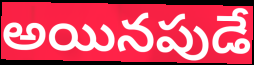
అయినపుడే